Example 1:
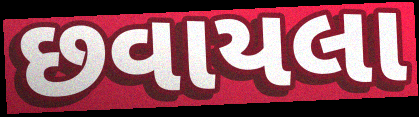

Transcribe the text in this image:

છવાયલા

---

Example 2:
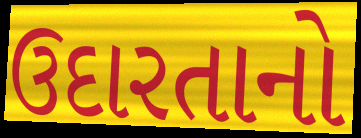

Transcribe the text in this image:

ઉદારતાનો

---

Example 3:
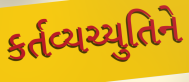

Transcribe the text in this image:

કર્તવ્યચ્યુતિને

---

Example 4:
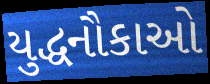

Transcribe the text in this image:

યુદ્ધનૌકાઓ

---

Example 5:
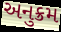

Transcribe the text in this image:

અનુક્રમ